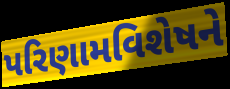
પરિણામવિશેષને